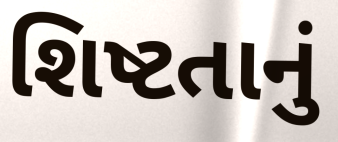
શિષ્ટતાનું